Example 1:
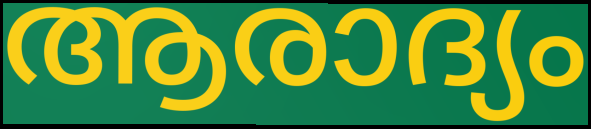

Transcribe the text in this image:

ആരാദ്യം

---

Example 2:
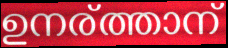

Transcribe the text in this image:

ഉനര്ത്താന്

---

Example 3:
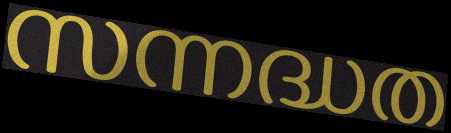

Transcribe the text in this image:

സന്നദ്ധത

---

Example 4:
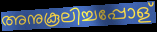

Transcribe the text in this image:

അനുകൂലിച്ചപ്പോള്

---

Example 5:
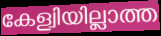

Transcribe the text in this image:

കേള്വിയില്ലാത്ത